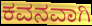
ಕವನವಾಗಿ